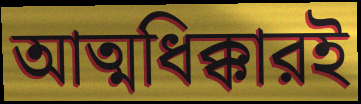
আত্মধিক্কারই